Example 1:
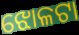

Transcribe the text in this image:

ଝୋଳଟା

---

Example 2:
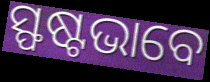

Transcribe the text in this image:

ସ୍ଫଷ୍ଟଭାବେ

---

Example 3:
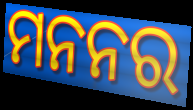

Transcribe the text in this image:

ମନନର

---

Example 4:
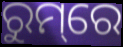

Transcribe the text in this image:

ରୁମ୍‌ରେ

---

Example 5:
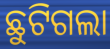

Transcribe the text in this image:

ଛୁଟିଗଲା